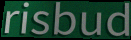
risbud